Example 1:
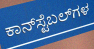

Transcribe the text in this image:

ಕಾನ್‌ಸ್ಟೆಬಲ್‌ಗಳ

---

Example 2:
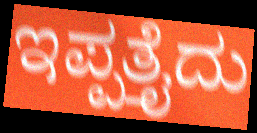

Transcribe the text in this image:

ಇಪ್ಪತ್ತೈದು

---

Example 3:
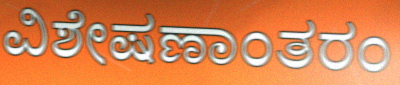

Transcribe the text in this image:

ವಿಶೇಷಣಾಂತರಂ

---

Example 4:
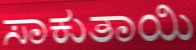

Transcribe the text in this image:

ಸಾಕುತಾಯಿ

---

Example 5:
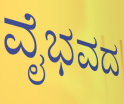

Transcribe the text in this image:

ವೈಭವದ